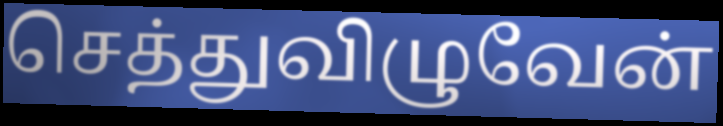
செத்துவிழுவேன்